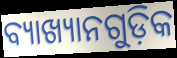
ବ୍ୟାଖ୍ୟାନଗୁଡ଼ିକ